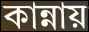
কান্নায়